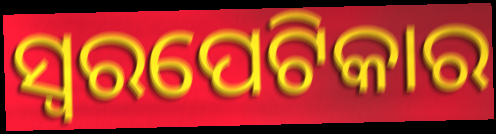
ସ୍ଵରପେଟିକାର